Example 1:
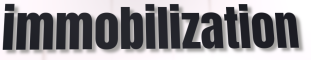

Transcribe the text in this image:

immobilization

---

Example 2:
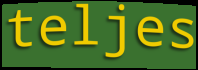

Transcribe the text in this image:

teljes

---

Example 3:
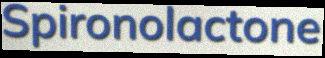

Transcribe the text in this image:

Spironolactone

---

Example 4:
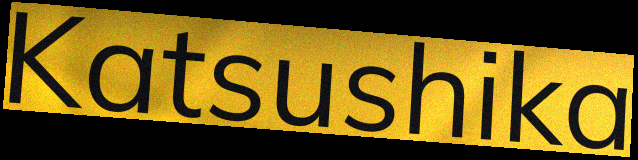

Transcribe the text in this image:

Katsushika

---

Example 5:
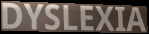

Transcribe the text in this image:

DYSLEXIA